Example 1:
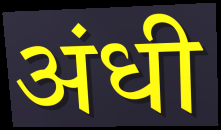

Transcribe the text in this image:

अंधी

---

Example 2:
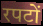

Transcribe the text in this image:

रपटों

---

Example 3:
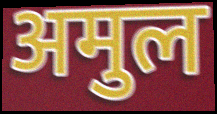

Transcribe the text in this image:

अमुल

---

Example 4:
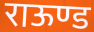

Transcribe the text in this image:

राऊण्ड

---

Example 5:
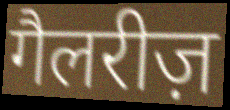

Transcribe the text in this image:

गैलरीज़